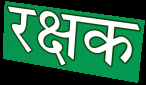
रक्षक